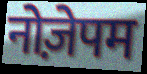
नोज़ेपम